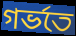
গৰ্ভতে